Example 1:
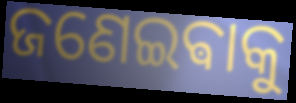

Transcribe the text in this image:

ଜଣେଇଵାକୁ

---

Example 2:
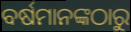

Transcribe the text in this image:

ବର୍ଷମାନଙ୍କଠାରୁ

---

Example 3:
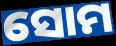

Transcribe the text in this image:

ସୋମ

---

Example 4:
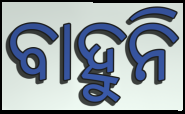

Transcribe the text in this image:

ବାହୁନି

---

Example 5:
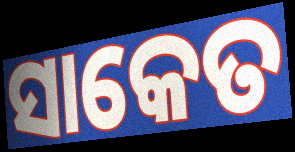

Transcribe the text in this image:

ସାକେତ